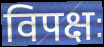
विपक्षः